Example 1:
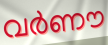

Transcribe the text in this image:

വർണൗ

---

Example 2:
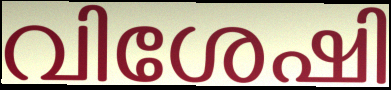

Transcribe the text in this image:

വിശേഷി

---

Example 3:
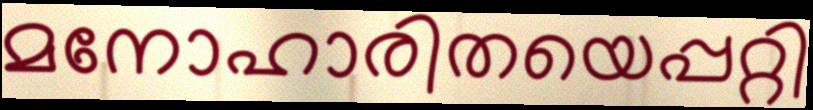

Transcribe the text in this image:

മനോഹാരിതയെപ്പറ്റി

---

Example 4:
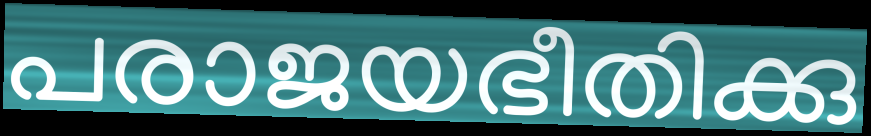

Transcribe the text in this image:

പരാജയഭീതിക്കു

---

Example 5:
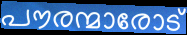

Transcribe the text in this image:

പൗരന്മാരോട്